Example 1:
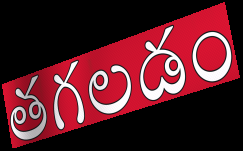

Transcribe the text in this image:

తగలడం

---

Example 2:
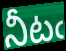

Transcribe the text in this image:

నీటఁ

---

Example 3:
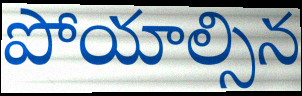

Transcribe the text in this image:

పోయాల్సిన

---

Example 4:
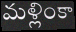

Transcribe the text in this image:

మళ్లింకా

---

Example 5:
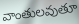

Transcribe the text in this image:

వాంతులవుతూ